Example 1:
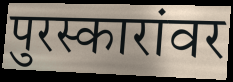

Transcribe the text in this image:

पुरस्कारांवर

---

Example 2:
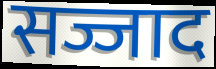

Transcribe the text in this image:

सज्जाद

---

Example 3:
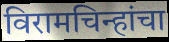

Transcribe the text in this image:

विरामचिन्हांचा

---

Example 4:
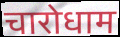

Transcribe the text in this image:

चारोधाम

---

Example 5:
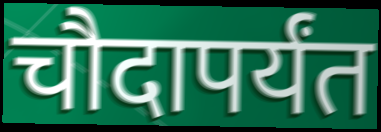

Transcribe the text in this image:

चौदापर्यंत